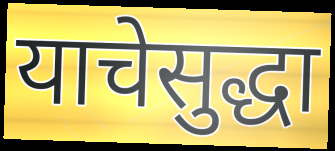
याचेसुद्धा